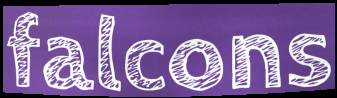
falcons